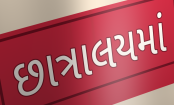
છાત્રાલયમાં